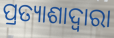
ପ୍ରତ୍ୟାଶାଦ୍ୱାରା